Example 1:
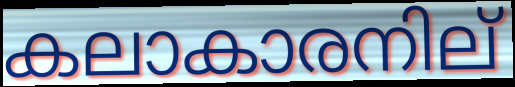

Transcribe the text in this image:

കലാകാരനില്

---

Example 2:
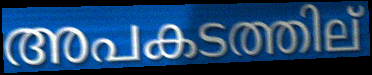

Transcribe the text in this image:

അപകടത്തില്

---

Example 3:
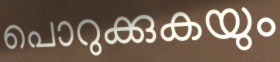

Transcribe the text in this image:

പൊറുക്കുകയും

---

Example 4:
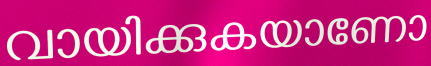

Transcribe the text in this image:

വായിക്കുകയാണോ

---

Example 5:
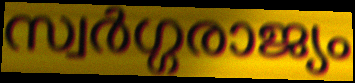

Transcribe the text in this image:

സ്വർഗ്ഗരാജ്യം